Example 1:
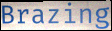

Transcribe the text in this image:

Brazing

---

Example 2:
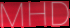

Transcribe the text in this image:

MHD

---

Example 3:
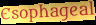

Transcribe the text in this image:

Esophageal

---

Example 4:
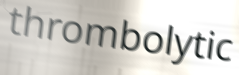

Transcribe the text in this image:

thrombolytic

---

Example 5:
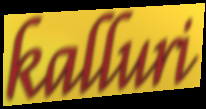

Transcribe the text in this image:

kalluri